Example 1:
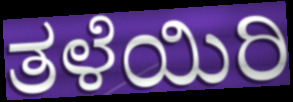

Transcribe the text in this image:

ತಳೆಯಿರಿ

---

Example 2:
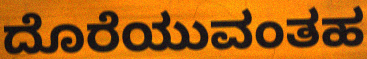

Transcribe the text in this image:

ದೊರೆಯುವಂತಹ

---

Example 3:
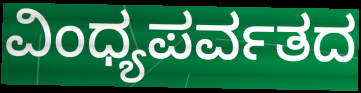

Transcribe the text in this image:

ವಿಂಧ್ಯಪರ್ವತದ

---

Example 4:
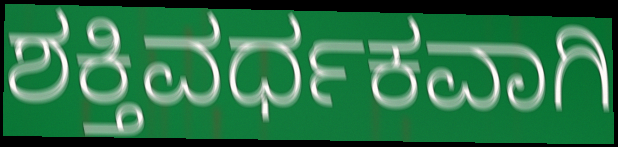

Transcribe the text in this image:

ಶಕ್ತಿವರ್ಧಕವಾಗಿ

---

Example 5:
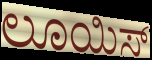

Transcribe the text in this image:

ಲೂಯಿಸ್